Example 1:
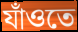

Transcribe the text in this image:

যাঁওতে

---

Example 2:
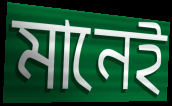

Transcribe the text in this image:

মানেই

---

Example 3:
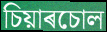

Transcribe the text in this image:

চিয়াৰচোল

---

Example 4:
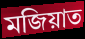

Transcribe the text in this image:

মজিয়াত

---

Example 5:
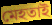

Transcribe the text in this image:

মেহতাই